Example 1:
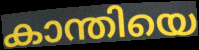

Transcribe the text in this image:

കാന്തിയെ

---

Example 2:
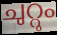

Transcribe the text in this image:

ചുറ്റും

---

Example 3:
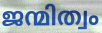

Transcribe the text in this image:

ജന്മിത്വം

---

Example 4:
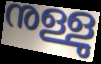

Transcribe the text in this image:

നുള്ളു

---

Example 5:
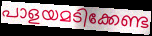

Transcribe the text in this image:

പാളയമടിക്കേണ്ട